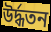
উর্দ্ধতন